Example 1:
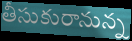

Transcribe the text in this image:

తీసుకురానున్న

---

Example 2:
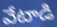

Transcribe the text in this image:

వేటాడి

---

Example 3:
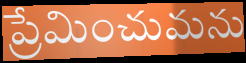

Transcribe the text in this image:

ప్రేమించుమను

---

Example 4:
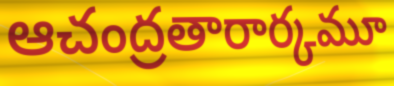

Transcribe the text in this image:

ఆచంద్రతారార్కమూ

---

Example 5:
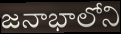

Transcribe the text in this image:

జనాభాలోని